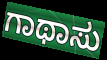
ಗಾಥಾಸು